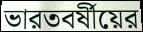
ভারতবর্ষীয়ের